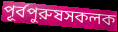
পূৰ্বপুৰুষসকলক